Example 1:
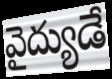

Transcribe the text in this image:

వైద్యుడే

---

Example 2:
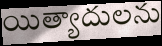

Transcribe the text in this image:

యిత్యాదులను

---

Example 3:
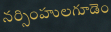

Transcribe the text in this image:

నర్సింహులగూడెం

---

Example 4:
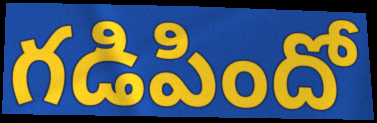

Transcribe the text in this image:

గడిపిందో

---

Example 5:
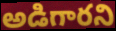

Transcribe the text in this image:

అడిగారని